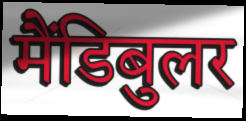
मैंडिबुलर